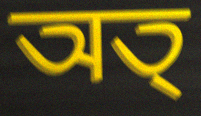
অত্